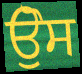
ਉੋਸ